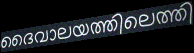
ദൈവാലയത്തിലെത്തി